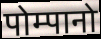
पोम्पानो